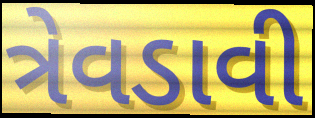
ત્રેવડાવી